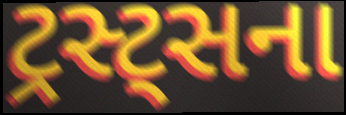
ટ્રસ્ટ્સના